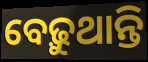
ବେଢ଼ୁଥାନ୍ତି